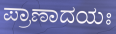
ಪ್ರಾಣಾದಯಃ